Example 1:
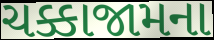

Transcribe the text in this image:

ચક્કાજામના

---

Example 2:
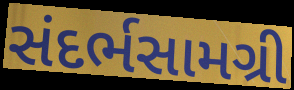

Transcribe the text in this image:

સંદર્ભસામગ્રી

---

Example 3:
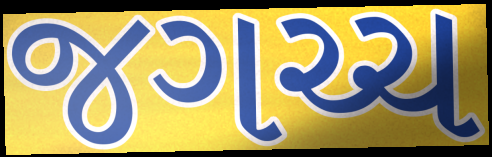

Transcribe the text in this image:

જગચ્ચ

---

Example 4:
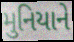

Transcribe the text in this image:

મુનિયાને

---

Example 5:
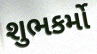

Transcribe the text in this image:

શુભકર્મો